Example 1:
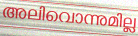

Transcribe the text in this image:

അലിവൊന്നുമില്ല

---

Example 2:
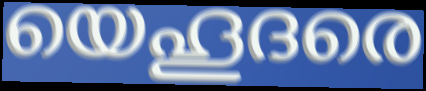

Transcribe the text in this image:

യെഹൂദരെ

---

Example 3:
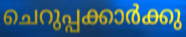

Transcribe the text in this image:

ചെറുപ്പക്കാർക്കു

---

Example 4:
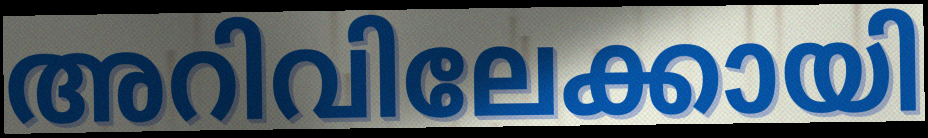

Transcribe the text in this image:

അറിവിലേക്കായി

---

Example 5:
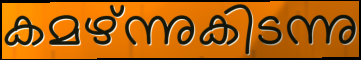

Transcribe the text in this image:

കമഴ്ന്നുകിടന്നു